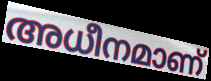
അധീനമാണ്